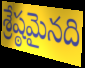
శ్రేష్ఠమైనది